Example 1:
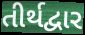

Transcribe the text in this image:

તીર્થદ્વાર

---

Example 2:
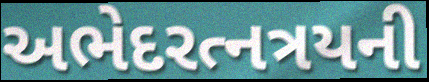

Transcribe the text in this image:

અભેદરત્નત્રયની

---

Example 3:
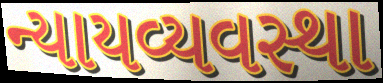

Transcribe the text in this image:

ન્યાયવ્યવસ્થા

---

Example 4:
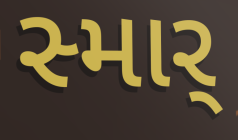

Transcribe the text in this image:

સ્માર્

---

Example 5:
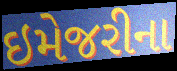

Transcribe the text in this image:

ઇમેજરીના